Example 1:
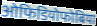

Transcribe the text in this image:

ओफिडियोफोबिया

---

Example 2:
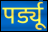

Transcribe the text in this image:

पर्ड्यू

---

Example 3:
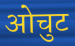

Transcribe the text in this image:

ओचुट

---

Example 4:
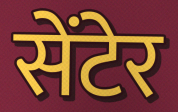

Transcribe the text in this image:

सेंटेर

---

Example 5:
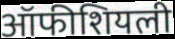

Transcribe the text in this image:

ऑफीशियली